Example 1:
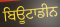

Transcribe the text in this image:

ਬਿਊਟਾਡੀਨ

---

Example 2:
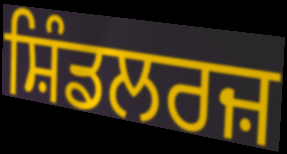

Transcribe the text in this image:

ਸ਼ਿੰਡਲਰਜ਼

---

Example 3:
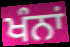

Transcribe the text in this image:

ਖੰਨਾਂ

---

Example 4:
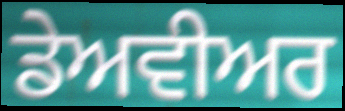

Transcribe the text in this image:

ਡੇਅਵੀਅਰ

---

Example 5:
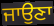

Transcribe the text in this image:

ਜਾਉਣਾ